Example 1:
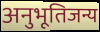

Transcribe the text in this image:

अनुभूतिजन्य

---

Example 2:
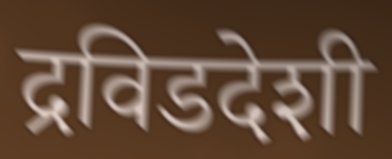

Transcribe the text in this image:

द्रविडदेशी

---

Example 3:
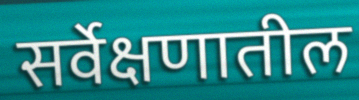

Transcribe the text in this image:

सर्वेक्षणातील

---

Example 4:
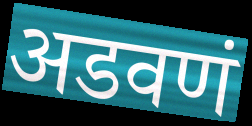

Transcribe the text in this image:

अडवणं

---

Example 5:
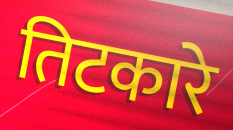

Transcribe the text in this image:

तिटकारे